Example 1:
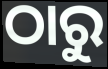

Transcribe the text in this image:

ଠାରୁ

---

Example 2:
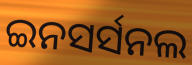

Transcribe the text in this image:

ଇନସର୍ସନଲ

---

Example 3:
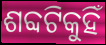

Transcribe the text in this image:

ଶବ୍ଦଟିକୁହିଁ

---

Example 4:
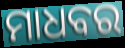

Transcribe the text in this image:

ମାଧବର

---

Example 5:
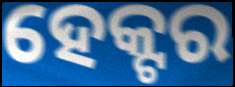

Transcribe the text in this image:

ହେକ୍ଟର